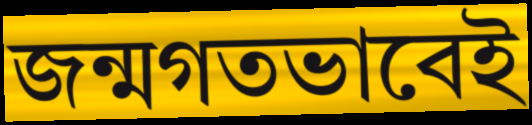
জন্মগতভাবেই